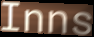
Inns